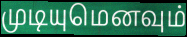
முடியுமெனவும்